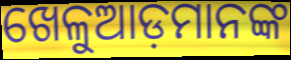
ଖେଳୁଆଡ଼ମାନଙ୍କ